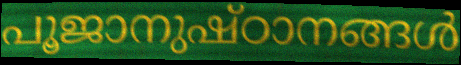
പൂജാനുഷ്ഠാനങ്ങൾ